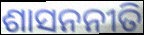
ଶାସନନୀତି